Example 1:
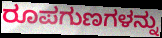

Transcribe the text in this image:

ರೂಪಗುಣಗಳನ್ನು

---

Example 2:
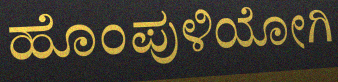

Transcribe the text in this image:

ಹೊಂಪುಳಿಯೋಗಿ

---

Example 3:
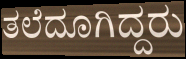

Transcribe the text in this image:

ತಲೆದೂಗಿದ್ದರು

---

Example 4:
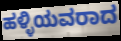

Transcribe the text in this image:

ಹಳ್ಳಿಯವರಾದ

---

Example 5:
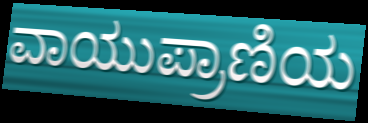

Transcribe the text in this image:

ವಾಯುಪ್ರಾಣಿಯ